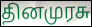
தினமுரசு